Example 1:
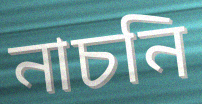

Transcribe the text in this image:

নাচনি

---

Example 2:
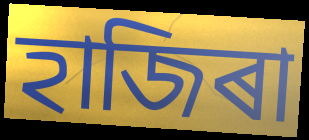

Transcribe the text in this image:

হাজিৰা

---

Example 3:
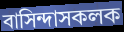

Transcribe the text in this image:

বাসিন্দাসকলক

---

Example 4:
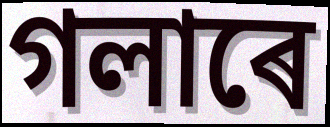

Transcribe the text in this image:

গলাৰে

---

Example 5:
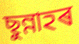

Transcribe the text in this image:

ছুন্নাহৰ